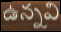
ఉన్నవి